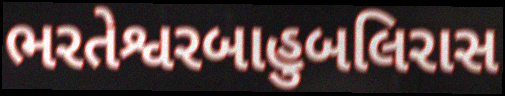
ભરતેશ્વરબાહુબલિરાસ